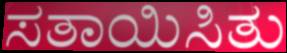
ಸತಾಯಿಸಿತು